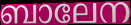
ബാലേന